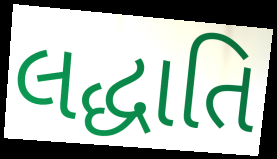
લદ્ધાતિ